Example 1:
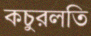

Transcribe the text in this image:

কচুরলতি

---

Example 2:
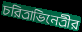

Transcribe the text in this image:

চরিত্রাভিনেত্রীর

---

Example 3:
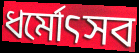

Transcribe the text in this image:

ধর্মোৎসব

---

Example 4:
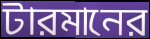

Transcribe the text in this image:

টারমানের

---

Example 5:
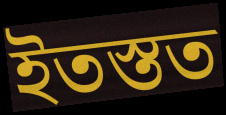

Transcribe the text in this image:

ইতস্তত